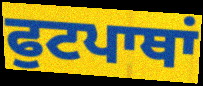
ਫੁਟਪਾਥਾਂ